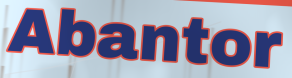
Abantor